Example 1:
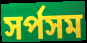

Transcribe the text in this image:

সর্পসম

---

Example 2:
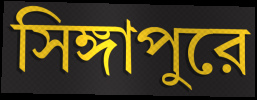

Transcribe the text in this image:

সিঙ্গাপুরে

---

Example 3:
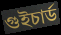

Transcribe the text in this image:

গুইচার্ড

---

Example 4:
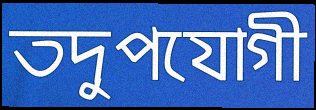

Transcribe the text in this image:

তদুপযোগী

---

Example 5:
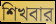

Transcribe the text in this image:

শিখবার